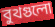
বুথগুলো